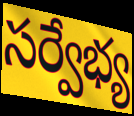
సర్వేభ్య